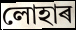
লোহাৰ